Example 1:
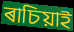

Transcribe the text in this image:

ৰাচিয়াই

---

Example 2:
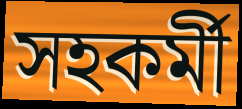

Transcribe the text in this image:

সহকৰ্মী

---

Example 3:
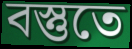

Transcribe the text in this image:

বস্তুতে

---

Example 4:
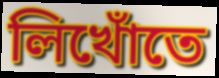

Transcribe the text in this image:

লিখোঁতে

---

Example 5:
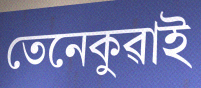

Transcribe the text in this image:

তেনেকুৱাই